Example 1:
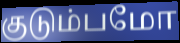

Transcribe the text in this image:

குடும்பமோ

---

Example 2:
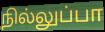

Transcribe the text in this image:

நில்லுப்பா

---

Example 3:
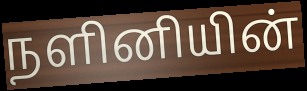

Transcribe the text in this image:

நளினியின்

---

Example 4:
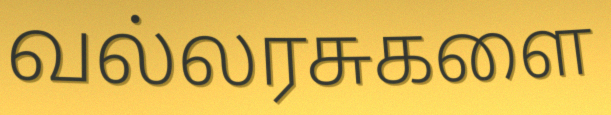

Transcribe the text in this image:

வல்லரசுகளை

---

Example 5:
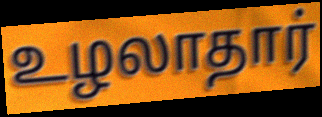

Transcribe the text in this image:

உழலாதார்